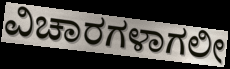
ವಿಚಾರಗಳಾಗಲೀ